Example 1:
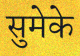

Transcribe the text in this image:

सुमेके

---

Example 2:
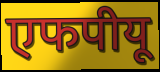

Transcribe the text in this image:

एफपीयू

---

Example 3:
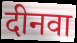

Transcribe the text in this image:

दीनवा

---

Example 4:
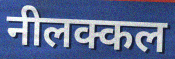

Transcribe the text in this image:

नीलक्कल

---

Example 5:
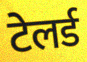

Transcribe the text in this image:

टेलर्ड